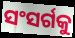
ସଂସର୍ଗକୁ